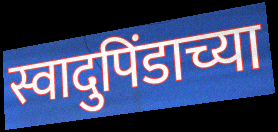
स्वादुपिंडाच्या